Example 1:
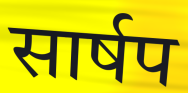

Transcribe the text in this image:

सार्षप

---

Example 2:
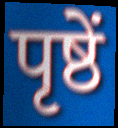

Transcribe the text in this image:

पृष्ठें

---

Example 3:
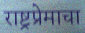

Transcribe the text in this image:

राष्ट्रप्रेमाचा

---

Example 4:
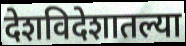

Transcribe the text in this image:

देशविदेशातल्या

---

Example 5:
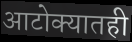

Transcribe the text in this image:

आटोक्यातही